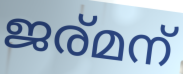
ജര്മന്